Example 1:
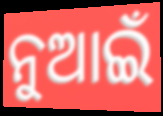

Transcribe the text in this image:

ନୁଆଇଁ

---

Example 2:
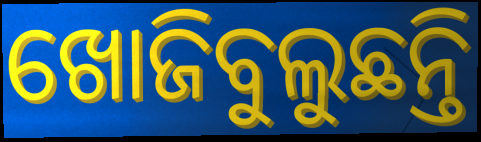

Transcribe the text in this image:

ଖୋଜିବୁଲୁଛନ୍ତି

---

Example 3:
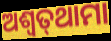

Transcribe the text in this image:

ଅଶ୍ବତ୍‌ଥାମା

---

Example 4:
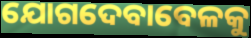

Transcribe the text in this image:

ଯୋଗଦେବାବେଳକୁ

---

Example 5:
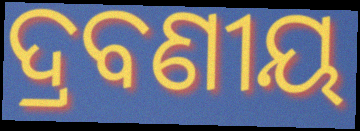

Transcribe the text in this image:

ଦ୍ରବଣୀୟ